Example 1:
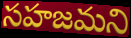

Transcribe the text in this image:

సహజమని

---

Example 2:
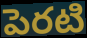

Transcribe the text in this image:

పెరటి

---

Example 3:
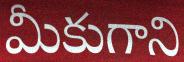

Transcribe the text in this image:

మీకుగాని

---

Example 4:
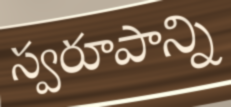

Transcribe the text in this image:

స్వరూపాన్ని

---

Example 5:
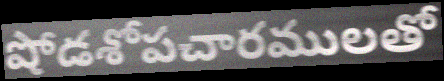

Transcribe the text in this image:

షోడశోపచారములతో